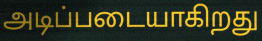
அடிப்படையாகிறது